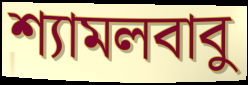
শ্যামলবাবু